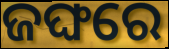
ଜଙ୍ଘରେ